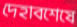
দেহাবশেষে